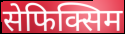
सेफिक्सिम